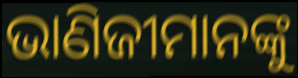
ଭାଣିଜୀମାନଙ୍କୁ